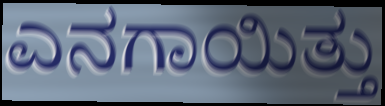
ಎನಗಾಯಿತ್ತು